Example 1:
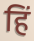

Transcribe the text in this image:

हिं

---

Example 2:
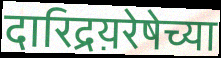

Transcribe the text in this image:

दारिद्रय़रेषेच्या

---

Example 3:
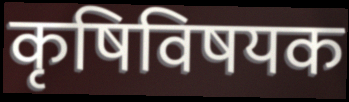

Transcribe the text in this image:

कृषिविषयक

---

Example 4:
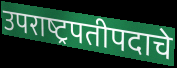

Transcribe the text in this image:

उपराष्ट्रपतीपदाचे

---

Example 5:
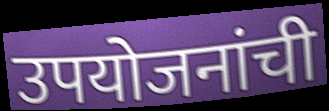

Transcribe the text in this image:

उपयोजनांची